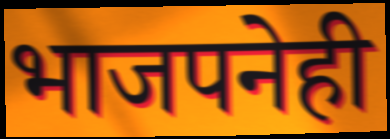
भाजपनेही